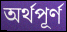
অর্থপূর্ণ